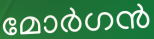
മോർഗൻ